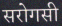
सरोगसी